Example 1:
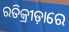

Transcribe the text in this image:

ରତିକ୍ରୀଡ଼ାରେ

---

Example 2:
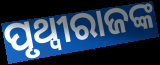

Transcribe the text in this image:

ପୃଥ୍ଵୀରାଜଙ୍କ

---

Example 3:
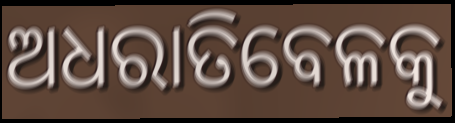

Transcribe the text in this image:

ଅଧରାତିବେଳକୁ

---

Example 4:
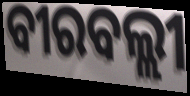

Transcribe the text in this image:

ବୀରବଲ୍ଲୀ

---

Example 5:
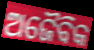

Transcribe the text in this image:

ଅଜୈବିକ